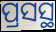
ପ୍ରସସ୍ଥ